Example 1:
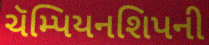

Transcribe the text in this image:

ચૅમ્પિયનશિપની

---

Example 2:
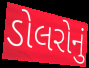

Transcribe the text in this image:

ડોલરોનું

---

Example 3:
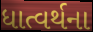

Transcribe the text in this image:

ધાત્વર્થના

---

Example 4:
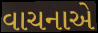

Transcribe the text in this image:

વાચનાએ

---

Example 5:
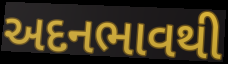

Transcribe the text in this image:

અદનભાવથી